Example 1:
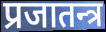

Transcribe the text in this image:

प्रजातन्त्र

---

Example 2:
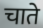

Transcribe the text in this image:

चाते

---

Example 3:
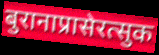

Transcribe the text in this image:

बुरानाप्रासेरत्सुक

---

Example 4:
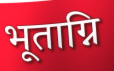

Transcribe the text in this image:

भूताग्नि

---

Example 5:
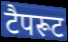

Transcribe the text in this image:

टैपरूट